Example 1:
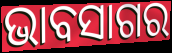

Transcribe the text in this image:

ଭାବସାଗର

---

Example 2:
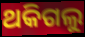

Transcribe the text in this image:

ଥକିଗଲୁ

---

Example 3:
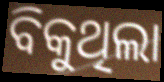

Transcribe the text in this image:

ବିକୁଥିଲା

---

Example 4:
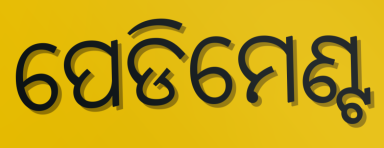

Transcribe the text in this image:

ପେଡିମେଣ୍ଟ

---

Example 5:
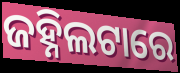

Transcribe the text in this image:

ଜହ୍ନିଲଟାରେ